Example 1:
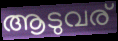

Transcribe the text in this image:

ആടുവര്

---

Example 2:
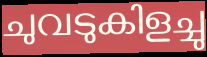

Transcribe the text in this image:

ചുവടുകിളച്ചു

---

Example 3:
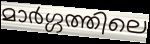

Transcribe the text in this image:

മാർഗ്ഗത്തിലെ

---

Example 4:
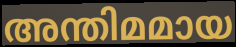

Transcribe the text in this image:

അന്തിമമായ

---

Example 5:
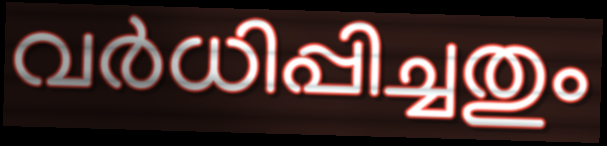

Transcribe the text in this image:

വർധിപ്പിച്ചതും